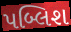
પબ્લિશ